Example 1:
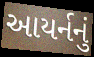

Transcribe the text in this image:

આયર્નનું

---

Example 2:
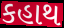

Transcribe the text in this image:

કહાથ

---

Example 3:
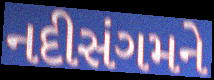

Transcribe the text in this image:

નદીસંગમને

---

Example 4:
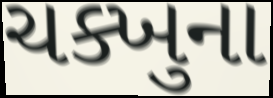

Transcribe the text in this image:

ચક્ખુના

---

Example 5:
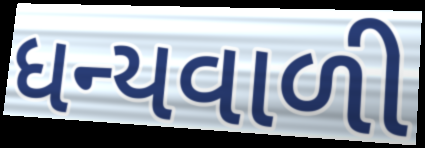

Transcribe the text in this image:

ધન્યવાળી